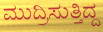
ಮುದ್ರಿಸುತ್ತಿದ್ದ